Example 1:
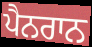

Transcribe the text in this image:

ਪੈਨਰਾਨ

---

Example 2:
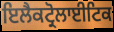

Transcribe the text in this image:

ਇਲੈਕਟ੍ਰੋਲਾਈਟਿਕ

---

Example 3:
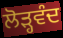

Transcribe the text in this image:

ਲੋੜ੍ਹਵੰਦ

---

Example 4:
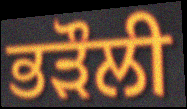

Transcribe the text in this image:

ਭੜੌਲੀ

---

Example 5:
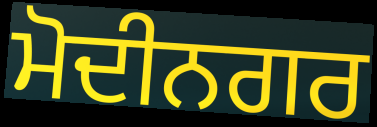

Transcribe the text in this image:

ਮੋਦੀਨਗਰ